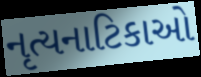
નૃત્યનાટિકાઓ